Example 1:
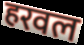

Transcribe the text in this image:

हरवल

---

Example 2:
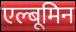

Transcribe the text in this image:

एल्बूमिन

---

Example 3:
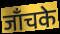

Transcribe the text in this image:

जाँचके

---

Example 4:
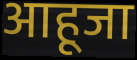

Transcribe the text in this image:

आहूजा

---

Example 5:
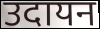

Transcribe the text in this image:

उदायन